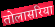
तोलासरिया